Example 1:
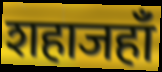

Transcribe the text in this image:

शहाजहाँ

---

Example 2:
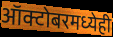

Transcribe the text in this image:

ऑक्टोबरमध्येही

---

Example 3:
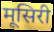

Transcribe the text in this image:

मूसिरी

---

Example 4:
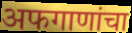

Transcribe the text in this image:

अफगाणांचा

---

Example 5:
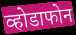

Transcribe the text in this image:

व्होडाफोन